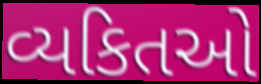
વ્યકિતઓ